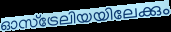
ഓസ്ട്രേലിയയിലേക്കും